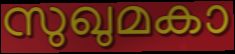
സുഖുമകാ